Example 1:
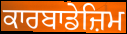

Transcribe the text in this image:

ਕਾਰਬਾਡੇਜ਼ਿਮ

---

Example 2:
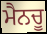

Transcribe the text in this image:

ਮੈਨਚੂ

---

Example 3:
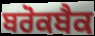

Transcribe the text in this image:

ਬਰੋਕਬੈਕ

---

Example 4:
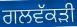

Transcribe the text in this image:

ਗਲਵੱਕੜੀ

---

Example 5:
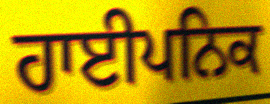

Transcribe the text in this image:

ਹਾਈਪਨਿਕ